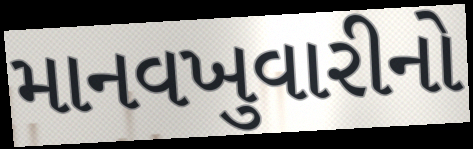
માનવખુવારીનો